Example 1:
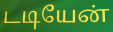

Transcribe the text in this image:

டடியேன்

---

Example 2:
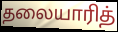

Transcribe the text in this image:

தலையாரித்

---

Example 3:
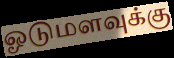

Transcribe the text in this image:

ஓடுமளவுக்கு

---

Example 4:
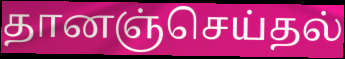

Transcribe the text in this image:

தானஞ்செய்தல்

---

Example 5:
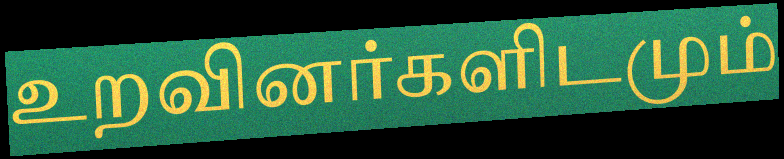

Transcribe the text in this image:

உறவினர்களிடமும்